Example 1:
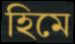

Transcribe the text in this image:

হিমে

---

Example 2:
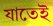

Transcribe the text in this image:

যাতেই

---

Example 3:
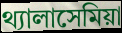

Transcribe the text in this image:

থ্যালাসেমিয়া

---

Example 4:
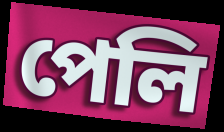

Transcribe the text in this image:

পেলি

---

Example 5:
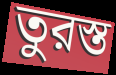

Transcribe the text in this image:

তুরস্ত